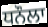
ਧਨੌਲਾ